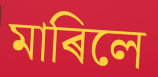
মাৰিলে